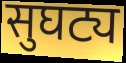
सुघट्य